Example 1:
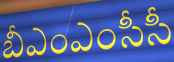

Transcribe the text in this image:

బీఎంఎంసీసీ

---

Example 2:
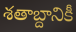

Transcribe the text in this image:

శతాబ్దానికీ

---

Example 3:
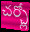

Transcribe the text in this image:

చర్చ్లో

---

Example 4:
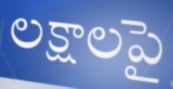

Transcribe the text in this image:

లక్షాలపై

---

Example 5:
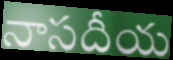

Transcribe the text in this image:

నాసదీయ